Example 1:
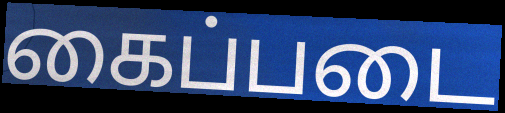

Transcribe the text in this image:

கைப்படை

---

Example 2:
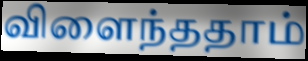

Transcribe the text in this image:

விளைந்ததாம்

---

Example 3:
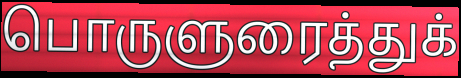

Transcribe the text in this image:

பொருளுரைத்துக்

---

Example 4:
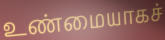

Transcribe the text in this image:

உண்மையாகச்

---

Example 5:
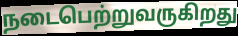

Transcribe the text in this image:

நடைபெற்றுவருகிறது